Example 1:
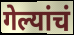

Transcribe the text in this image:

गेल्यांचं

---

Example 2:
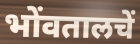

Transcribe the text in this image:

भोंवतालचें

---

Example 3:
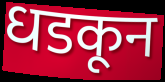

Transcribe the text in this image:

धडकून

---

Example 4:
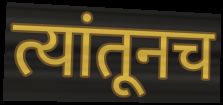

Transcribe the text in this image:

त्यांतूनच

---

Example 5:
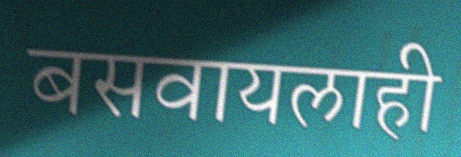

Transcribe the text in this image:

बसवायलाही